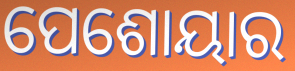
ପେଶୋୟାର